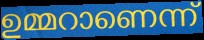
ഉമ്മറാണെന്ന്